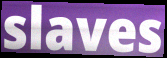
slaves